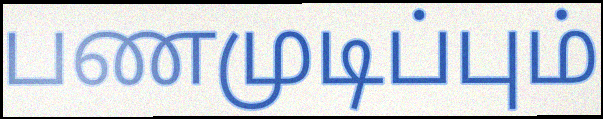
பணமுடிப்பும்